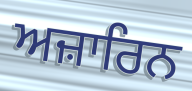
ਅਜ਼ਾਰਿਨ